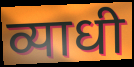
व्याधी